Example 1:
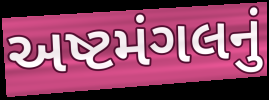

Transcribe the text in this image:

અષ્ટમંગલનું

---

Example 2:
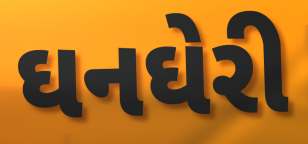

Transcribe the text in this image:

ઘનઘેરી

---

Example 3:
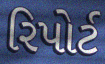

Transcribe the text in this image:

રિપોર્ટ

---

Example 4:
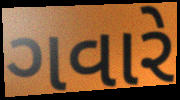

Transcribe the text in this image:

ગવારે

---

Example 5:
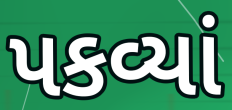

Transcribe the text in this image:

પકવ્યાં